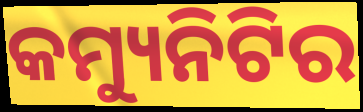
କମ୍ୟୁନିଟିର